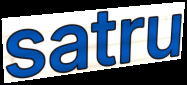
satru